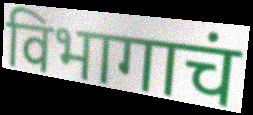
विभागाचं